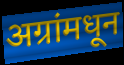
अग्रांमधून